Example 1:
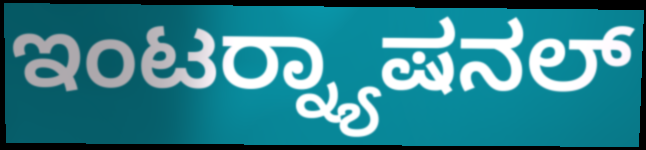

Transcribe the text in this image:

ಇಂಟರ್‍ನ್ಯಾಷನಲ್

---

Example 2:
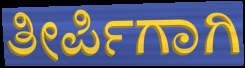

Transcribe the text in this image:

ತೀರ್ಪಿಗಾಗಿ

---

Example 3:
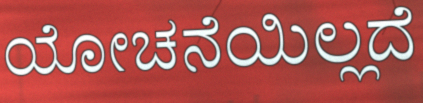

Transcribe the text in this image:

ಯೋಚನೆಯಿಲ್ಲದೆ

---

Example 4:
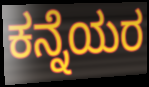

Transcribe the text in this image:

ಕನ್ನೆಯರ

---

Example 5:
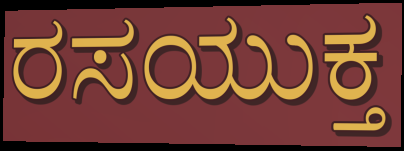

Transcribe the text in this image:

ರಸಯುಕ್ತ